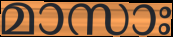
മാസാഃ